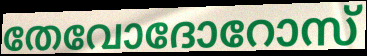
തേവോദോറോസ്